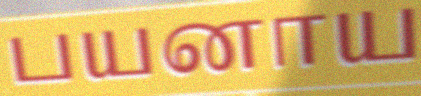
பயனாய